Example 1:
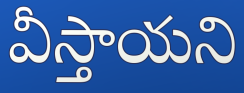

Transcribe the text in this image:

వీస్తాయని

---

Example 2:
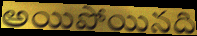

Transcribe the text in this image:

అయిపోయినది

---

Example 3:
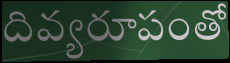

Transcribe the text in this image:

దివ్యరూపంతో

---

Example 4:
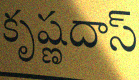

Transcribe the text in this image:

కృష్ణదాస్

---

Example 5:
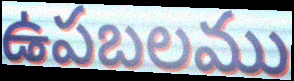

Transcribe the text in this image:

ఉపబలము